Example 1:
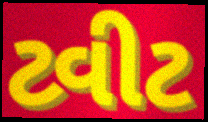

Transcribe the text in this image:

ટ્વીટ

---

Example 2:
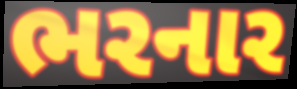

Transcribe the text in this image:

ભરનાર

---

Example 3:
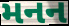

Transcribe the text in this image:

મનન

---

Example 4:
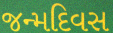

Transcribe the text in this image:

જન્મદિવસ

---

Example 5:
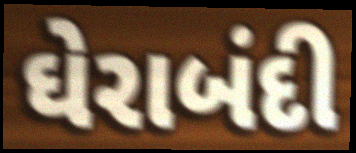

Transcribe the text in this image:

ઘેરાબંદી